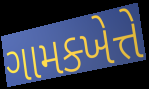
ગામક્ખેત્તે